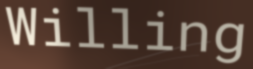
Willing